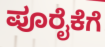
ಪೂರೈಕೆಗೆ